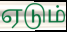
ஏடும்